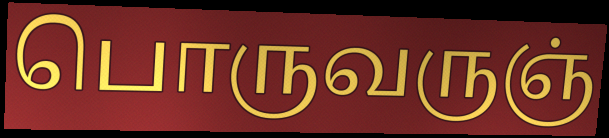
பொருவருஞ்